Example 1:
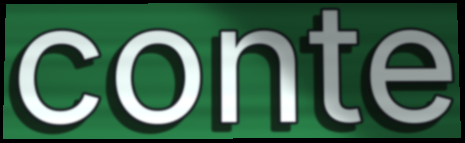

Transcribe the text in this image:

conte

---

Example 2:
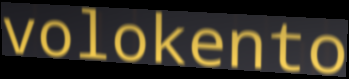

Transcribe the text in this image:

volokento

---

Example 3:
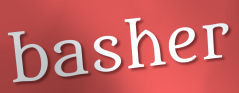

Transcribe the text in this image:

basher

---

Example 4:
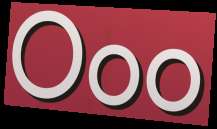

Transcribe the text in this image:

Ooo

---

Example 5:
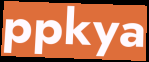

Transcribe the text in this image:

ppkya